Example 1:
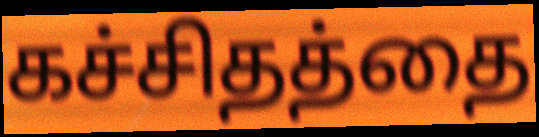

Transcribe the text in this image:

கச்சிதத்தை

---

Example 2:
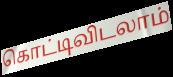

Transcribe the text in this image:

கொட்டிவிடலாம்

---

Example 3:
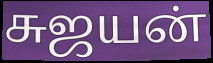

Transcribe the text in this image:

சுஜயன்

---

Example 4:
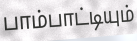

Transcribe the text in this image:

பாம்பாட்டியும்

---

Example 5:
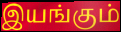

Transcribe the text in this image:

இயங்கும்